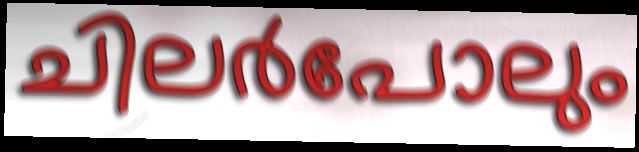
ചിലർപോലും